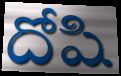
దోషి